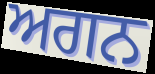
ਅਗਨ